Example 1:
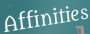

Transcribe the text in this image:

Affinities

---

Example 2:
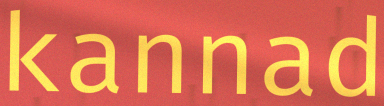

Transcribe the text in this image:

kannad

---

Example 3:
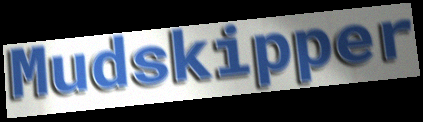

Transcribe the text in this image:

Mudskipper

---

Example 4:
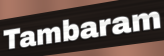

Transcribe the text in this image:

Tambaram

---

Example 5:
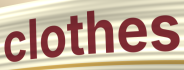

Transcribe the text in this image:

clothes